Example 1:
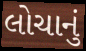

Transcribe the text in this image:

લોચાનું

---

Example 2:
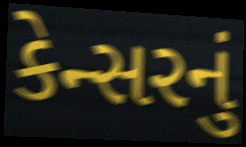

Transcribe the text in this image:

કેન્સરનું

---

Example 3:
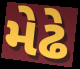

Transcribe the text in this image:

મેઢે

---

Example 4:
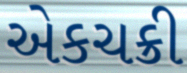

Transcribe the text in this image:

એકચક્રી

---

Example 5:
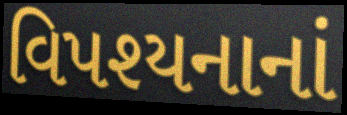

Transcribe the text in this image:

વિપશ્યનાનાં